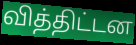
வித்திட்டன